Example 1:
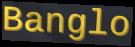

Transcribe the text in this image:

Banglo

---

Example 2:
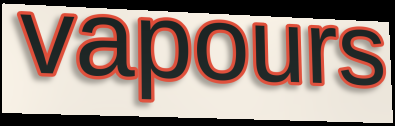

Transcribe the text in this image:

vapours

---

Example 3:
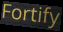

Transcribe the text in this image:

Fortify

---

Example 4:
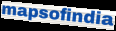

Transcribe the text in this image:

mapsofindia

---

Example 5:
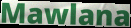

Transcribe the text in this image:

Mawlana